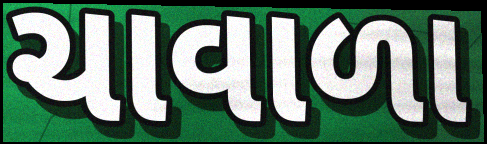
ચાવાળા